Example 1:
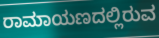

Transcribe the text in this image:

ರಾಮಾಯಣದಲ್ಲಿರುವ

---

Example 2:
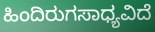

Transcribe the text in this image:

ಹಿಂದಿರುಗಸಾಧ್ಯವಿದೆ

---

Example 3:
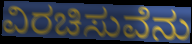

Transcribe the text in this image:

ವಿರಚಿಸುವೆನು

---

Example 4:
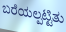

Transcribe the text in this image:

ಬರೆಯಲ್ಪಟ್ಟಿತು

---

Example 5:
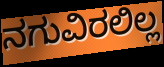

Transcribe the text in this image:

ನಗುವಿರಲಿಲ್ಲ